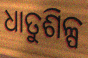
ଧାତୁଶିଳ୍ପ